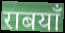
राबयाँ